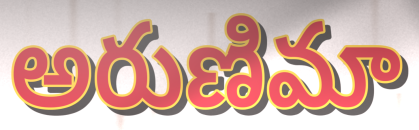
అరుణిమా